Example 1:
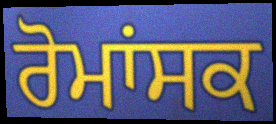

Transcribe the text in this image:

ਰੋਮਾਂਸਕ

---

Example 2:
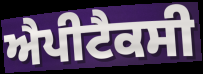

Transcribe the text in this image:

ਐਪੀਟੈਕਸੀ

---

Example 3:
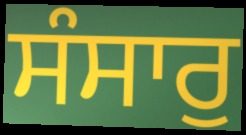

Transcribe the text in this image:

ਸੰਸਾਰੁ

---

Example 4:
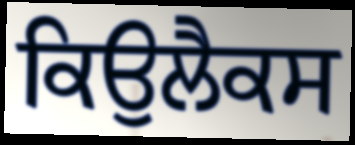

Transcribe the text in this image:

ਕਿਉਲੈਕਸ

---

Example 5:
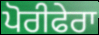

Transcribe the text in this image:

ਪੋਰੀਫੇਰਾ